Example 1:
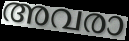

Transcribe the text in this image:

അവരാ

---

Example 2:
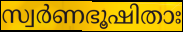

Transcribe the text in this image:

സ്വർണഭൂഷിതാഃ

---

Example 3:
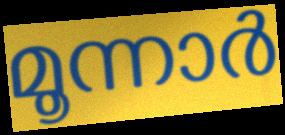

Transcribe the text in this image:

മൂന്നാർ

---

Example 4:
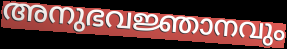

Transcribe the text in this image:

അനുഭവജ്ഞാനവും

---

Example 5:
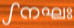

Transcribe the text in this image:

ഽനഘഃ